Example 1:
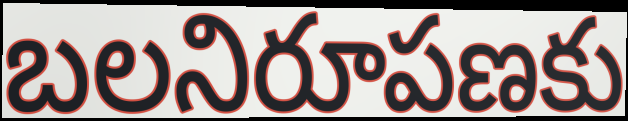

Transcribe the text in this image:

బలనిరూపణకు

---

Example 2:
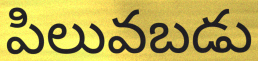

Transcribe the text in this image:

పిలువబడు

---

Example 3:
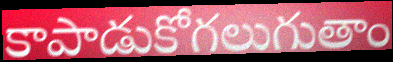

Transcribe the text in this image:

కాపాడుకోగలుగుతాం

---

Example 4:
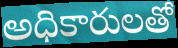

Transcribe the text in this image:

అధికారులతో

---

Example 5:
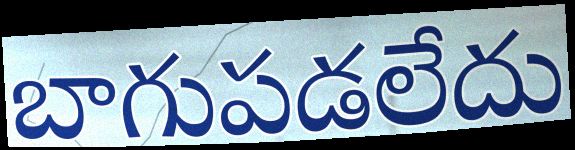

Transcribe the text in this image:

బాగుపడలేదు